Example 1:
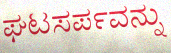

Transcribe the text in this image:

ಘಟಸರ್ಪವನ್ನು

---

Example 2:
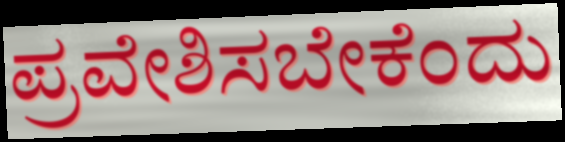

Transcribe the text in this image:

ಪ್ರವೇಶಿಸಬೇಕೆಂದು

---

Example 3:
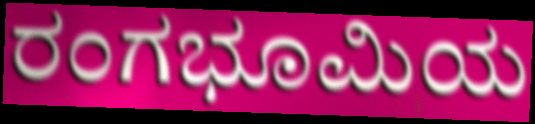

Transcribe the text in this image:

ರಂಗಭೂಮಿಯ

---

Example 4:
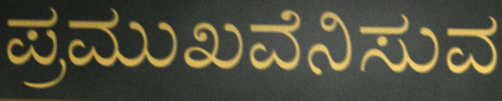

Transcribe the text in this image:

ಪ್ರಮುಖವೆನಿಸುವ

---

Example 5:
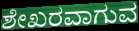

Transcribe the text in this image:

ಶೇಖರವಾಗುವ